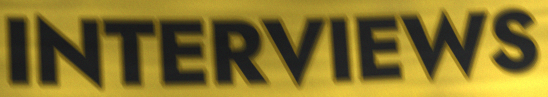
INTERVIEWS